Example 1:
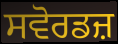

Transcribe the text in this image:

ਸਵੋਰਡਜ਼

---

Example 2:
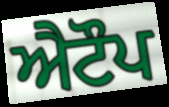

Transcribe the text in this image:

ਐਟੌਪ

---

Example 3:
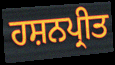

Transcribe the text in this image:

ਹਸ਼ਨਪ੍ਰੀਤ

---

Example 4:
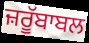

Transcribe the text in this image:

ਜ਼ਰੂੱਬਾਬਲ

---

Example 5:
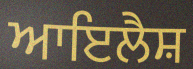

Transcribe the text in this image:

ਆਇਲੈਸ਼